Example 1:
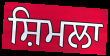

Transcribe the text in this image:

ਸ਼ਿਮਲਾ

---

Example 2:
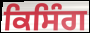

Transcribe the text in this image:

ਕਿਸਿੰਗ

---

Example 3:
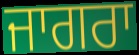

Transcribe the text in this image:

ਜਾਗਰਾ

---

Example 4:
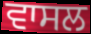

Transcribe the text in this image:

ਵਾਸਲ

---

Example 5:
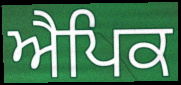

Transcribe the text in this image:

ਐਪਿਕ